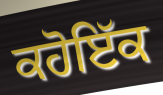
ਕਹੋਇੱਕ